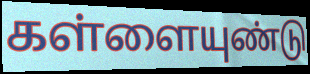
கள்ளையுண்டு